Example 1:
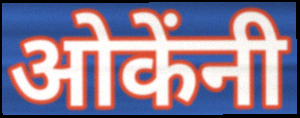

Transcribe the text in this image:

ओकेंनी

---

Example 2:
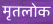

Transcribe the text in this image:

मृतलोक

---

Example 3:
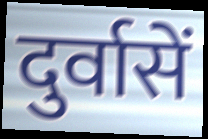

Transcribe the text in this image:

दुर्वासें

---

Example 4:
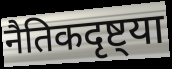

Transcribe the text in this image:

नैतिकदृष्ट्या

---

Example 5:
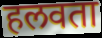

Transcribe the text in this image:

हलवता